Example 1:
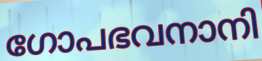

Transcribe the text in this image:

ഗോപഭവനാനി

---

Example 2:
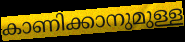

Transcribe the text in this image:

കാണിക്കാനുമുള്ള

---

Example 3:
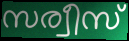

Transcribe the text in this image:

സര്വീസ്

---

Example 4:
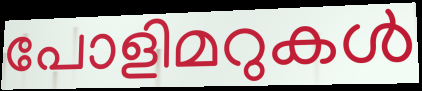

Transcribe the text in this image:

പോളിമറുകൾ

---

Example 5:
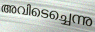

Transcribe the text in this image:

അവിടെച്ചെന്നു